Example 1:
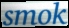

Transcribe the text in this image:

smok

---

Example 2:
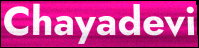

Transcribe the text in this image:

Chayadevi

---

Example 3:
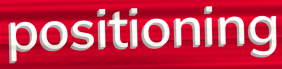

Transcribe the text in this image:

positioning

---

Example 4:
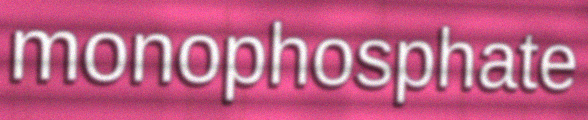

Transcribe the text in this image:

monophosphate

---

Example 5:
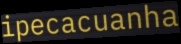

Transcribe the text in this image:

ipecacuanha